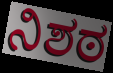
ನಿಶಠ